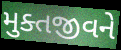
મુક્તજીવને